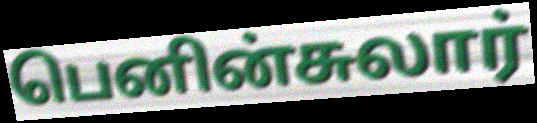
பெனின்சுலார்